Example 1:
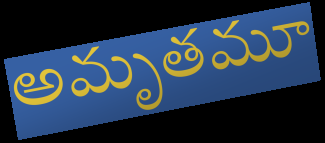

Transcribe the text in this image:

అమృతమూ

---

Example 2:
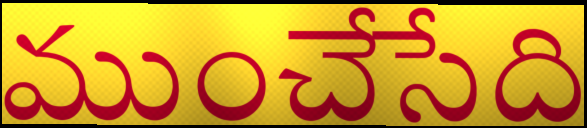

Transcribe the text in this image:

ముంచేసేది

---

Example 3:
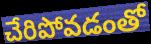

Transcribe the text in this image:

చేరిపోవడంతో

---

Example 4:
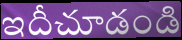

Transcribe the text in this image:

ఇదీచూడండి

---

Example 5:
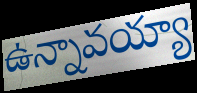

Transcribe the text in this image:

ఉన్నావయ్యా